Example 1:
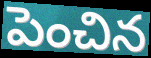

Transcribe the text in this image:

పెంచిన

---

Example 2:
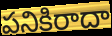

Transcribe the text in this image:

పనికిరాదా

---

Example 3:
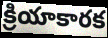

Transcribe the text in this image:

క్రియాకారక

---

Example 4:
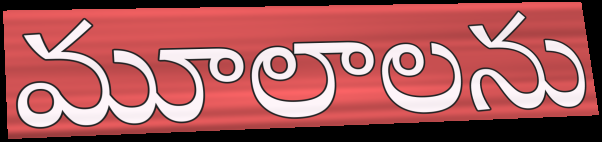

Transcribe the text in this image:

మూలాలను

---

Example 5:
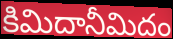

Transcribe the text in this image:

కిమిదానీమిదం